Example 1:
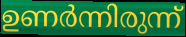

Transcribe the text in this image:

ഉണർന്നിരുന്ന്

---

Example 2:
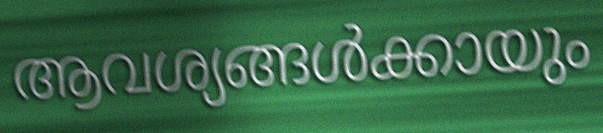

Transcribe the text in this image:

ആവശ്യങ്ങൾക്കായും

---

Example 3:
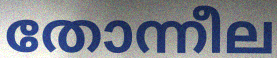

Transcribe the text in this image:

തോന്നീല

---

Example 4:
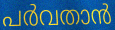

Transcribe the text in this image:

പർവതാൻ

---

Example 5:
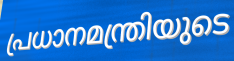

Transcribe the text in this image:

പ്രധാനമന്ത്രിയുടെ